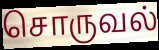
சொருவல்